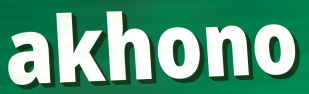
akhono